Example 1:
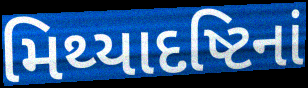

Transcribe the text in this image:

મિથ્યાદષ્ટિનાં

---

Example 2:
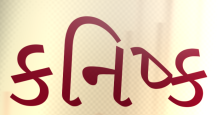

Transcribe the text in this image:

કનિષ્ક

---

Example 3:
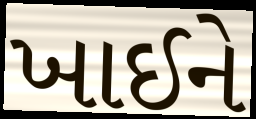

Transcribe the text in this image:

ખાઈને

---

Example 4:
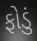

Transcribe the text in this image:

ફોડું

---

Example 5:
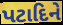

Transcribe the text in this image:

પટાદિને